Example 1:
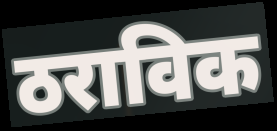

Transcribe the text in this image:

ठराविक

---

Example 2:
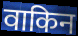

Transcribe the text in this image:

वाकिन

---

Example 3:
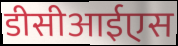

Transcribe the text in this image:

डीसीआईएस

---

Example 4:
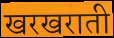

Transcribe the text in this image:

खरखराती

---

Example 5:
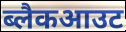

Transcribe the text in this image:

ब्लैकआउट